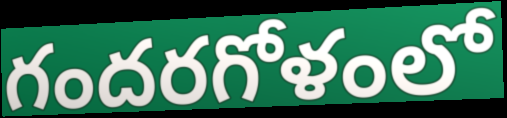
గందరగోళంలో